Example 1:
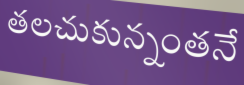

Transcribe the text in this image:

తలచుకున్నంతనే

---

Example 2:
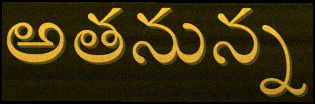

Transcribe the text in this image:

అతనున్న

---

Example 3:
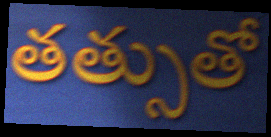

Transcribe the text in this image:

తత్సుతో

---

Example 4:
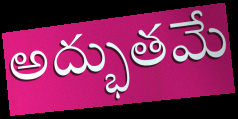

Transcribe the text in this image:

అద్భుతమే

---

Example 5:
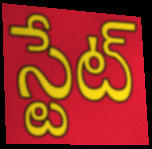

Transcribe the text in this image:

స్టేట్